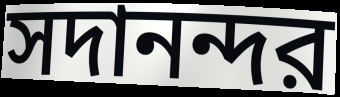
সদানন্দর